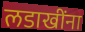
लडाखींना